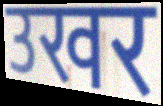
उखर